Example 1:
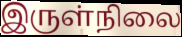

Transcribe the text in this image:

இருள்நிலை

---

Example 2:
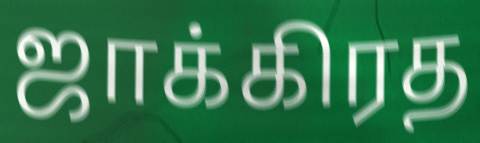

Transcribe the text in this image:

ஜாக்கிரத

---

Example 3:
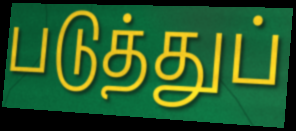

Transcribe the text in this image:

படுத்துப்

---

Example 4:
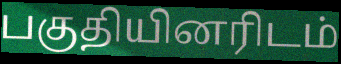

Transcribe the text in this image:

பகுதியினரிடம்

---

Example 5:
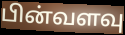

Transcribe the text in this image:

பின்வளவு